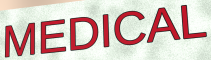
MEDICAL